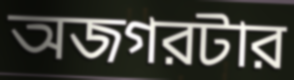
অজগরটার